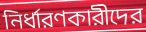
নির্ধারণকারীদের